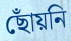
ছোঁয়নি